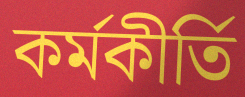
কর্মকীর্তি